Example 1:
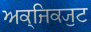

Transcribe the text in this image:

ਅਕ੍ਜਿਕ੍ਯੁਟ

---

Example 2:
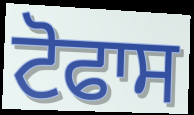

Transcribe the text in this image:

ਟੋਫਾਸ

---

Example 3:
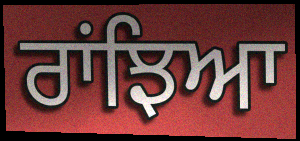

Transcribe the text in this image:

ਰਾਂਝਿਆ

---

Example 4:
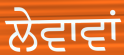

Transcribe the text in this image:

ਲੇਵਾਵਾਂ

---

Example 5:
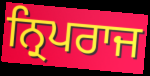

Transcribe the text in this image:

ਨ੍ਰਿਪਰਾਜ